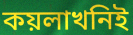
কয়লাখনিই